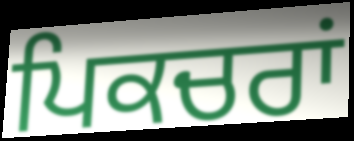
ਪਿਕਚਰਾਂ